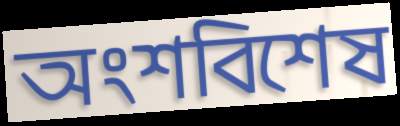
অংশবিশেষ